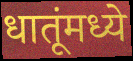
धातूंमध्ये